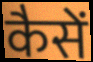
कैसें